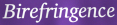
Birefringence